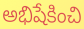
అభిషేకించి